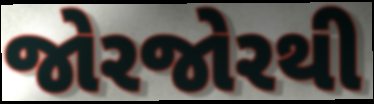
જોરજોરથી